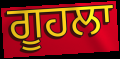
ਗੂਹਲਾ